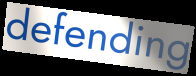
defending